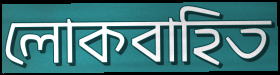
লোকবাহিত